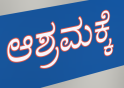
ಆಶ್ರಮಕ್ಕೆ